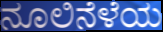
ನೂಲಿನೆಳೆಯ